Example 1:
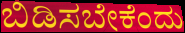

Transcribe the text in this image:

ಬಿಡಿಸಬೇಕೆಂದು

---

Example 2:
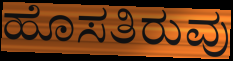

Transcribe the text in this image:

ಹೊಸತಿರುವು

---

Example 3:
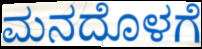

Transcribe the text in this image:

ಮನದೊಳಗೆ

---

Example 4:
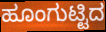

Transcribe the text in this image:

ಹೂಂಗುಟ್ಟಿದ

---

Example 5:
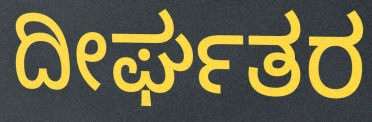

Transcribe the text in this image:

ದೀರ್ಘತರ